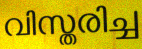
വിസ്തരിച്ച